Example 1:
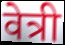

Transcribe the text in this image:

वेत्री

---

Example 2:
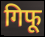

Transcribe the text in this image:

गिफू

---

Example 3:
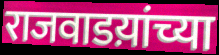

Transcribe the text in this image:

राजवाडय़ांच्या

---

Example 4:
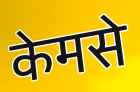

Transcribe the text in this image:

केमसे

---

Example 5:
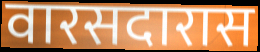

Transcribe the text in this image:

वारसदारास